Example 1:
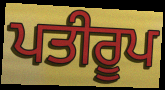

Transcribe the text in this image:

ਪਤੀਰੂਪ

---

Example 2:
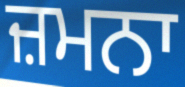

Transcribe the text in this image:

ਜ਼ਮਨਾ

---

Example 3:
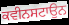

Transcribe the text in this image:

ਕਵੀਨਸਟਾਉਨ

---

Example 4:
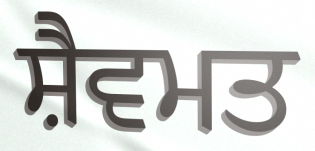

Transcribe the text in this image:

ਸ਼ੈਵਮਤ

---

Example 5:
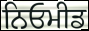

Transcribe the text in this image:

ਨਿਓਮੀਡ